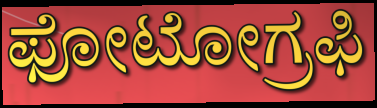
ಫೋಟೋಗ್ರಫಿ